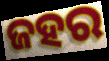
ଜହର